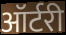
ऑर्टरी